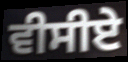
ਵੀਸੀਏ